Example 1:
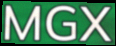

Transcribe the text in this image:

MGX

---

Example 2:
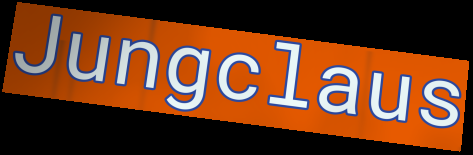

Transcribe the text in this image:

Jungclaus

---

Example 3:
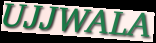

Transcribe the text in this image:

UJJWALA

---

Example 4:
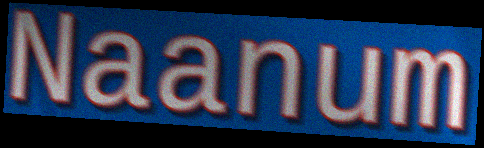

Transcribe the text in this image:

Naanum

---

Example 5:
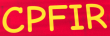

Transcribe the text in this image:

CPFIR